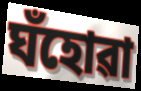
ঘঁহোৱা